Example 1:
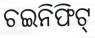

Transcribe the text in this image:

ଚଇନିଫିଟ୍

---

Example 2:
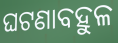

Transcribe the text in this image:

ଘଟଣାବହୁଳ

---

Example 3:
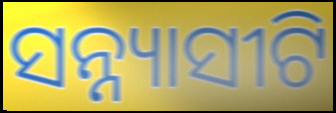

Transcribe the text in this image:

ସନ୍ନ୍ୟାସୀଟି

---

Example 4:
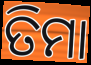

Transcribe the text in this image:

ତିମା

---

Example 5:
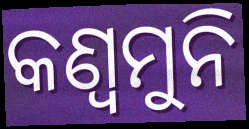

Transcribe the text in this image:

କଣ୍ୱମୁନି